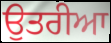
ਉਤਰੀਆ